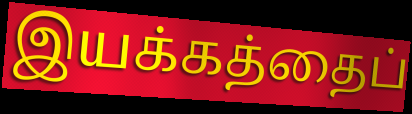
இயக்கத்தைப்